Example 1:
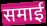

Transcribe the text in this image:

समाई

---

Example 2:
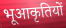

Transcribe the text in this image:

भूआकृतियों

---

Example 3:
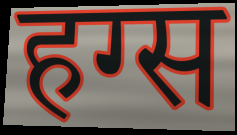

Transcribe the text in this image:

हग्स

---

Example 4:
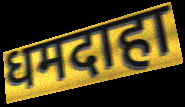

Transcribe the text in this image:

धमदाहा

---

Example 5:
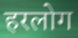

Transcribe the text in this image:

हरलोग